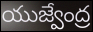
యుజ్వేంద్ర